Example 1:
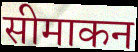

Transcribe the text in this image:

सीमाकन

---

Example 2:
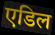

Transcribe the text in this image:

एडिल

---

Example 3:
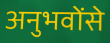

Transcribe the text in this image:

अनुभवोंसे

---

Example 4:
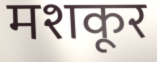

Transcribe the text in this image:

मशकूर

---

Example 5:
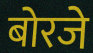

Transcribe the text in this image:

बोरजे